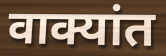
वाक्यांत